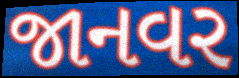
જાનવર